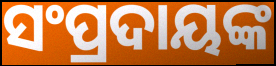
ସଂପ୍ରଦାୟଙ୍କ